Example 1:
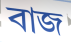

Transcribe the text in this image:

বাজ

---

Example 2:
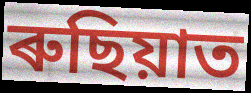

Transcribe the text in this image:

ৰুছিয়াত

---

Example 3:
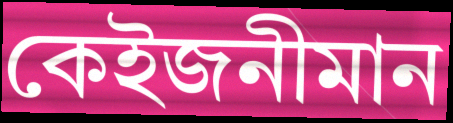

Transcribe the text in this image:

কেইজনীমান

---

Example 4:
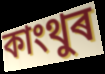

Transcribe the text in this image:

কাংথুৰ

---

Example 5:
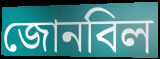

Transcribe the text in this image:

জোনবিল